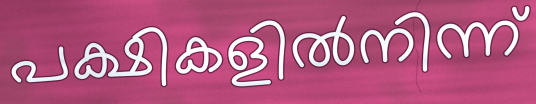
പക്ഷികളിൽനിന്ന്